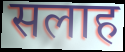
सलाह